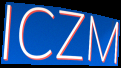
ICZM